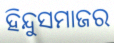
ହିନ୍ଦୁସମାଜର